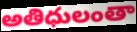
అతిధులంతా